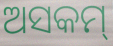
ଅସକମ୍